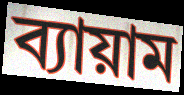
ব্যায়াম